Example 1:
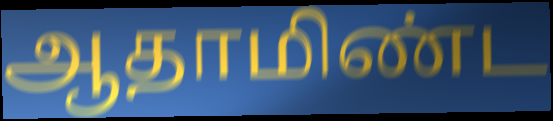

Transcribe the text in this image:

ஆதாமிண்ட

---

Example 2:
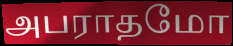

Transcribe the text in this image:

அபராதமோ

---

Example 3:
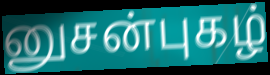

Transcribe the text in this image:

னுசன்புகழ்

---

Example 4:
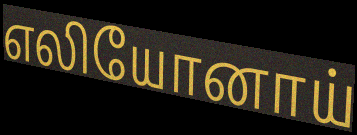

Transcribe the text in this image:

எலியோனாய்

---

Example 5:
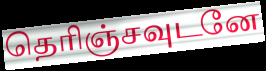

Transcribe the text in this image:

தெரிஞ்சவுடனே